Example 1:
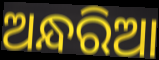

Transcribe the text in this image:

ଅନ୍ଧରିଆ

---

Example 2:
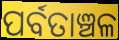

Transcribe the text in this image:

ପର୍ବତାଞ୍ଚଳ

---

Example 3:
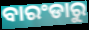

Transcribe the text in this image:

ବାରଂଡାରୁ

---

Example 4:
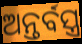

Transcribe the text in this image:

ଅନ୍ତର୍ବସ୍ତ୍ର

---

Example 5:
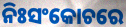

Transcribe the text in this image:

ନିଃସଂକୋଚରେ